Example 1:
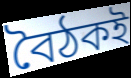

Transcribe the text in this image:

বৈঠকই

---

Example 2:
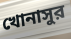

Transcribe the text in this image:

খোনাসুর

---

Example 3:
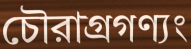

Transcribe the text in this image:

চৌরাগ্রগণ্যং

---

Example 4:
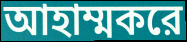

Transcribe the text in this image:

আহাম্মকরে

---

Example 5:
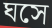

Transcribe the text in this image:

ঘসে